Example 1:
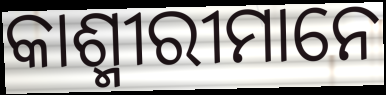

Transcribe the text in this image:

କାଶ୍ମୀରୀମାନେ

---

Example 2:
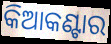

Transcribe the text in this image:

କିଆକଣ୍ଟାର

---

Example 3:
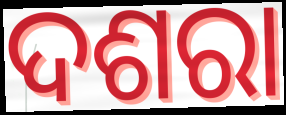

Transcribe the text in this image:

ଦଶରା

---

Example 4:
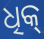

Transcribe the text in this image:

ଧିକ୍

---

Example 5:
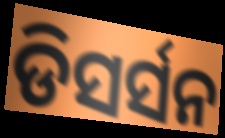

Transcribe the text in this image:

ଡିସର୍ସନ